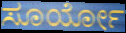
ಸೂರ್ಯೋ